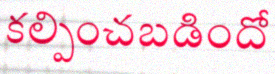
కల్పించబడిందో